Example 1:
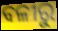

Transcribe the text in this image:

ବଳୀରୁ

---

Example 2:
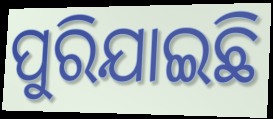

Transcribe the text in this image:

ପୁରିଯାଇଛି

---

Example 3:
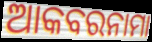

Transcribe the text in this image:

ଆକବରନାମା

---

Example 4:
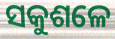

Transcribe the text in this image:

ସକୁଶଳେ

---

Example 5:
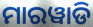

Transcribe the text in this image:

ମାରୱାଡି